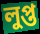
লুপ্ত